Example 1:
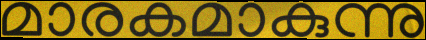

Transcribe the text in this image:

മാരകമാകുന്നു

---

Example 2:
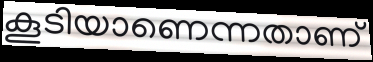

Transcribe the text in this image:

കൂടിയാണെന്നതാണ്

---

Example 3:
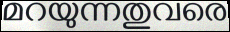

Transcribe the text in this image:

മറയുന്നതുവരെ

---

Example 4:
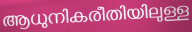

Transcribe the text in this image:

ആധുനികരീതിയിലുള്ള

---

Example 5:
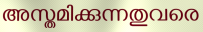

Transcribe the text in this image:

അസ്തമിക്കുന്നതുവരെ